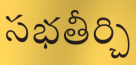
సభతీర్చి